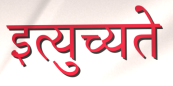
इत्युच्यते